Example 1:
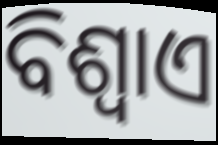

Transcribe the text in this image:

ବିଶ୍ୱାଏ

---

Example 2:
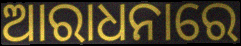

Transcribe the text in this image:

ଆରାଧନାରେ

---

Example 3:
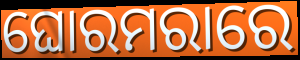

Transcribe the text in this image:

ଘୋରମରାରେ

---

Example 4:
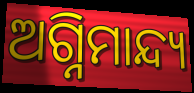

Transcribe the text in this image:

ଅଗ୍ନିମାନ୍ଦ୍ୟ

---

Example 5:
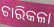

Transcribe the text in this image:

ଚାରିକଳା